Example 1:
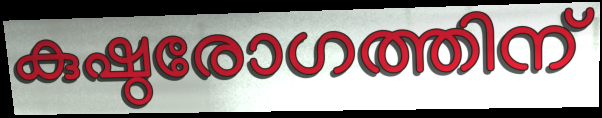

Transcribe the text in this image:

കുഷ്ഠരോഗത്തിന്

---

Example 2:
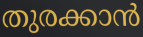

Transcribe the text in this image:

തുരക്കാൻ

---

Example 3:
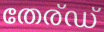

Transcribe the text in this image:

തേര്ഡ്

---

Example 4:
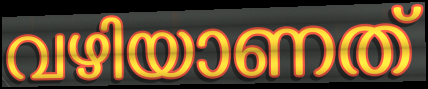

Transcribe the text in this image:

വഴിയാണത്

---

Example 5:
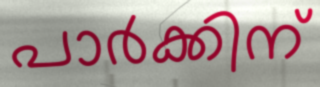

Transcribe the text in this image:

പാർക്കിന്